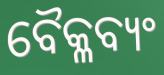
ବୈକ୍ଳବ୍ୟଂ